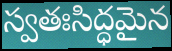
స్వతఃసిద్ధమైన